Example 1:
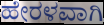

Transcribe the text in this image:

ಹೇರಳವಾಗಿ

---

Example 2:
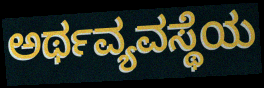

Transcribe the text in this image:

ಅರ್ಥವ್ಯವಸ್ಥೆಯ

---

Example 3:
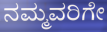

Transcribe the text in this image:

ನಮ್ಮವರಿಗೇ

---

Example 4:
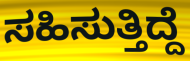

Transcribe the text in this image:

ಸಹಿಸುತ್ತಿದ್ದೆ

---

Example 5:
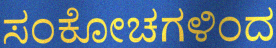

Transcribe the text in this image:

ಸಂಕೋಚಗಳಿಂದ